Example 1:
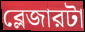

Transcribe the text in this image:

ব্লেজারটা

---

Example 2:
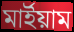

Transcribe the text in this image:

মার্ইয়াম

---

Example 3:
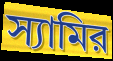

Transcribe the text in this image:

স্যামির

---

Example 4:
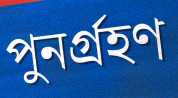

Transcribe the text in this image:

পুনর্গ্রহণ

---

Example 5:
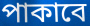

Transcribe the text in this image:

পাকাবে